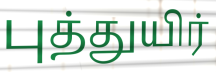
புத்துயிர்